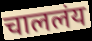
चाललंय